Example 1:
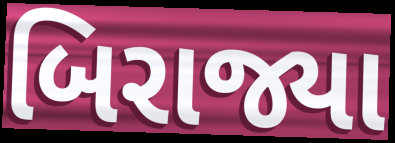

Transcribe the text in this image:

બિરાજ્યા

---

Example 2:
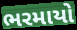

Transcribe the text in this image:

ભરમાયો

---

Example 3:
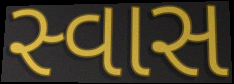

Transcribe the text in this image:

સ્વાસ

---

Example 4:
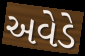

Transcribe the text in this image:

અવેડે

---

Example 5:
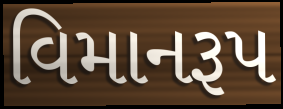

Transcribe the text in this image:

વિમાનરૂપ